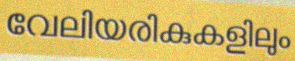
വേലിയരികുകളിലും